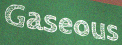
Gaseous